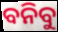
ବନିବୁ